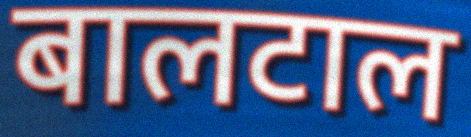
बालटाल